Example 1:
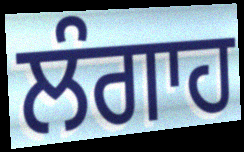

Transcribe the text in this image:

ਲੰਗਾਹ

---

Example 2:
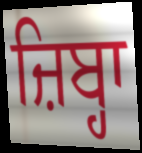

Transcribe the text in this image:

ਜ਼ਿਬ੍ਹਾ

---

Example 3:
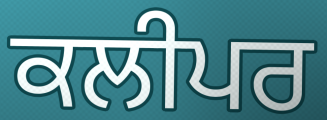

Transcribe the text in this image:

ਕਲੀਪਰ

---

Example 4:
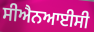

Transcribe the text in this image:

ਸੀਐਨਆਈਸੀ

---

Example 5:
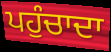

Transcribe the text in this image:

ਪਹੁੰਚਾਦਾ